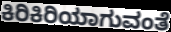
ಕಿರಿಕಿರಿಯಾಗುವಂತೆ